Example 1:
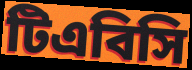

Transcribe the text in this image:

টিএবিসি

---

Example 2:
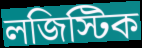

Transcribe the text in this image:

লজিস্টিক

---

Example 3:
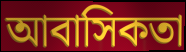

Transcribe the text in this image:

আবাসিকতা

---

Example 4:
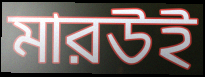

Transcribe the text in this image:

মারউই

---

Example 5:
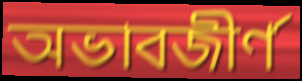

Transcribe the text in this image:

অভাবজীর্ণ